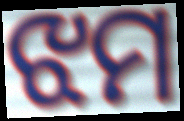
ଝମ